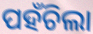
ପହଁଚିଲା